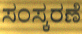
ಸಂಸ್ಕರಣೆ